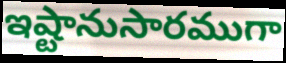
ఇష్టానుసారముగా